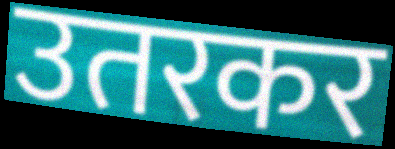
उतरकर